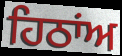
ਹਿਠਾਂਅ